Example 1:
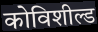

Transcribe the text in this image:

कोविशील्ड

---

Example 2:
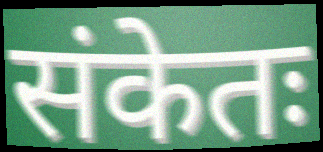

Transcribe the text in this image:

संकेतः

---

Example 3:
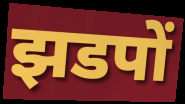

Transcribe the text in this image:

झडपों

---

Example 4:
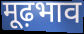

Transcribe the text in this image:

मूढ़भाव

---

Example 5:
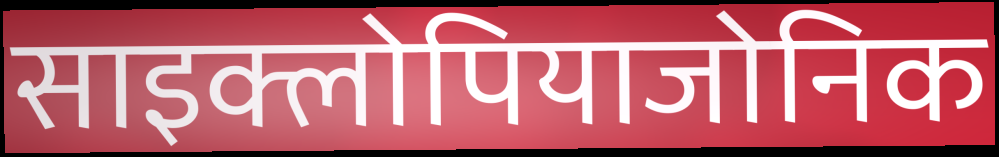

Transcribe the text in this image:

साइक्लोपियाजोनिक